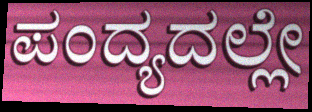
ಪಂದ್ಯದಲ್ಲೇ